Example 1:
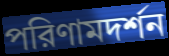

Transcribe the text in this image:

পরিণামদর্শন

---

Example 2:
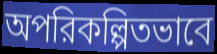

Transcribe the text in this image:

অপরিকল্পিতভাবে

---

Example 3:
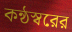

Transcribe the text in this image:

কন্ঠস্বরের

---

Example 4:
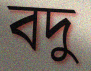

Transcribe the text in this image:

বদু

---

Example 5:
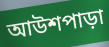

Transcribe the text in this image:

আউশপাড়া